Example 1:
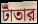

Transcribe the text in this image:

টাঁতার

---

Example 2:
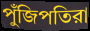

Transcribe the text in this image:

পুঁজিপতিরা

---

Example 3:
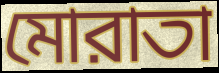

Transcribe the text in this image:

মোরাতা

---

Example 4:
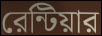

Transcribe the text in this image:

রেন্টিয়ার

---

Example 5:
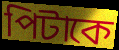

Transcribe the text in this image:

পিটাকে